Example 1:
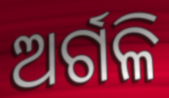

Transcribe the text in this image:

ଅର୍ଗଳି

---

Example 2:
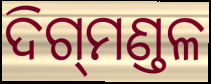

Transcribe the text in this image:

ଦିଗ୍‍ମଣ୍ଡଳ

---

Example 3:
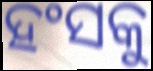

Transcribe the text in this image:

ହଂସକୁ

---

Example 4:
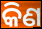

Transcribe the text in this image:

କିଣ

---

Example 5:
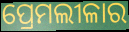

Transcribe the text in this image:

ପ୍ରେମଲୀଳାର